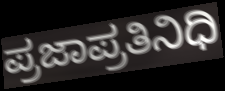
ಪ್ರಜಾಪ್ರತಿನಿಧಿ